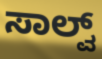
ಸಾಲ್ವ್